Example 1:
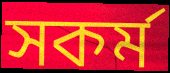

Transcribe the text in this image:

সকর্ম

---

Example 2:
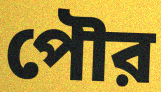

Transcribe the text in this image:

পৌর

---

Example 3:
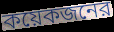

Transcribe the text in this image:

কয়েকজনের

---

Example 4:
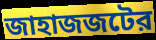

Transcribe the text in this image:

জাহাজজটের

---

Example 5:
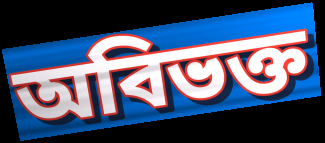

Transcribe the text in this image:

অবিভক্ত